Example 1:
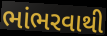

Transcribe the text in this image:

ભાંભરવાથી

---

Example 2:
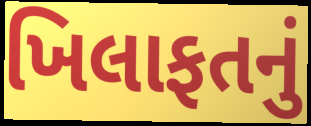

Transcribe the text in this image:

ખિલાફતનું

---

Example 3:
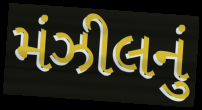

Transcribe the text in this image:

મંઝીલનું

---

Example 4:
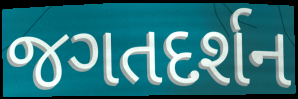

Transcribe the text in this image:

જગતદર્શન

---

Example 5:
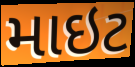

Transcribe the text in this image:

માઇટ